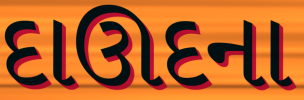
દાઊદના